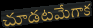
చూడటమేగాక